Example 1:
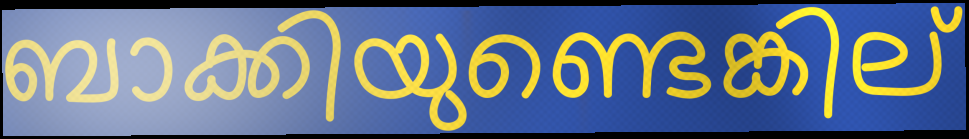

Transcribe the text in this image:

ബാക്കിയുണ്ടെങ്കില്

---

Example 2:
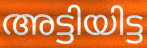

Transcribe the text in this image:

അട്ടിയിട്ട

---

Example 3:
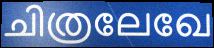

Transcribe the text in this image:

ചിത്രലേഖേ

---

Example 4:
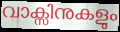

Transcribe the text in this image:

വാക്സിനുകളും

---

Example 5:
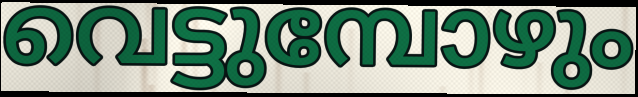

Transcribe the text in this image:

വെട്ടുമ്പോഴും